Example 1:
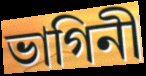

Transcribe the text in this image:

ভাগিনী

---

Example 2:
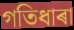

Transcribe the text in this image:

গতিধাৰা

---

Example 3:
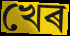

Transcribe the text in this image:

খেৰ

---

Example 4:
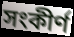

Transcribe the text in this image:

সংকীৰ্ণ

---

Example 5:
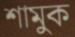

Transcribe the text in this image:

শামুক